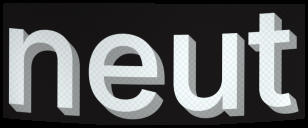
neut